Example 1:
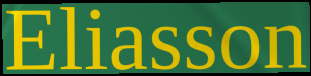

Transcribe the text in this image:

Eliasson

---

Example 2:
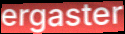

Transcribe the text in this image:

ergaster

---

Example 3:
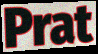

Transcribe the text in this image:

Prat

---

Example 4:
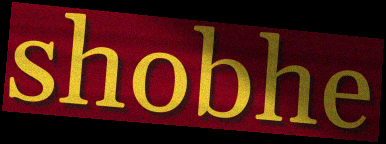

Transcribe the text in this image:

shobhe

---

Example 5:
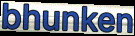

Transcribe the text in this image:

bhunken